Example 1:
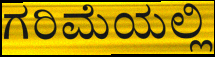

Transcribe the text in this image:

ಗರಿಮೆಯಲ್ಲಿ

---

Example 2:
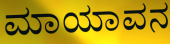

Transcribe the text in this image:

ಮಾಯಾವನ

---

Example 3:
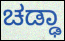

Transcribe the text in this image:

ಚಡ್ಢಾ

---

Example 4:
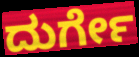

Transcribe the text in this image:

ದುರ್ಗೇ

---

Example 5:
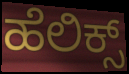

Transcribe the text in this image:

ಹೆಲಿಕ್ಸ್